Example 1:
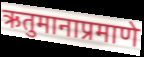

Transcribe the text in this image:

ऋतुमानाप्रमाणे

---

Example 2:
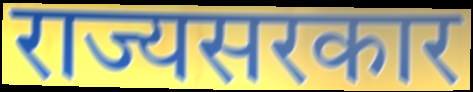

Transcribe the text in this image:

राज्यसरकार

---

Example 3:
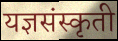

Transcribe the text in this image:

यज्ञसंस्कृती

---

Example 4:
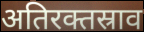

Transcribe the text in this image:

अतिरक्तस्राव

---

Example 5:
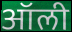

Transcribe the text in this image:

ऑली